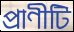
প্রাণীটি